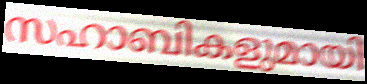
സഹാബികളുമായി